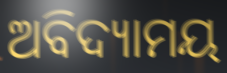
ଅବିଦ୍ୟାମୟ